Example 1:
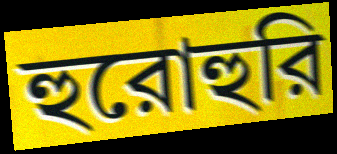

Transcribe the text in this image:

হুরোহুরি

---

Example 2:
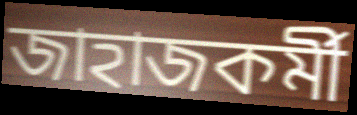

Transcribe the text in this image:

জাহাজকর্মী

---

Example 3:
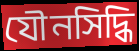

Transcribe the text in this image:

যৌনসিদ্ধি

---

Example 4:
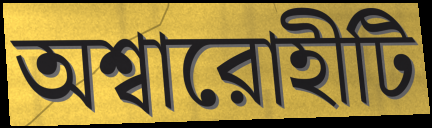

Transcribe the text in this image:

অশ্বারোহীটি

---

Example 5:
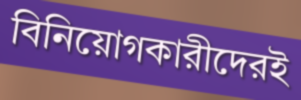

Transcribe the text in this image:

বিনিয়োগকারীদেরই